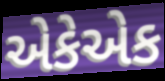
એકેએક